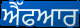
ਐੱਫਆਰ